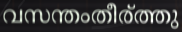
വസന്തംതീര്ത്തു